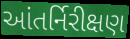
આંતર્નિરીક્ષણ